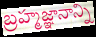
బ్రహ్మజ్ఞానాన్ని